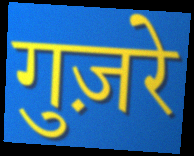
गुज़रे